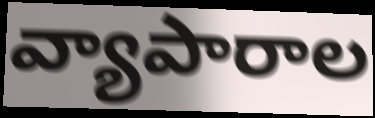
వ్యాపారాల